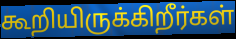
கூறியிருக்கிறீர்கள்